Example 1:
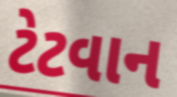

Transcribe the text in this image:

ટેટવાન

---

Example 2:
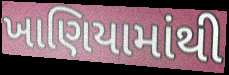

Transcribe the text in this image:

ખાણિયામાંથી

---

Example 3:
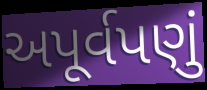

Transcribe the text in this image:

અપૂર્વપણું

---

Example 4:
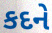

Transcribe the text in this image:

કદને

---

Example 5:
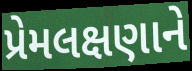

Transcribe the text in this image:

પ્રેમલક્ષણાને